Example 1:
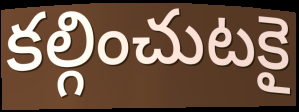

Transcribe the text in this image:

కల్గించుటకై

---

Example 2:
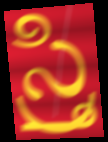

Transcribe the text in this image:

స్ర్తి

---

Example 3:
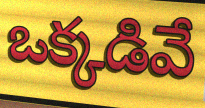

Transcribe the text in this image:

ఒక్కడివే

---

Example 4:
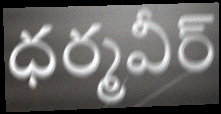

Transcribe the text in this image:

ధర్మవీర్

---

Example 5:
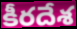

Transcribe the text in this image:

కీరదేశ